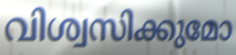
വിശ്വസിക്കുമോ